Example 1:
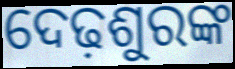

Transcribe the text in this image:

ଦେଢ଼ଶୁରଙ୍କ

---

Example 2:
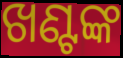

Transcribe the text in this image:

ଖଣ୍ଟଙ୍କ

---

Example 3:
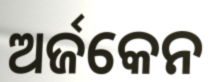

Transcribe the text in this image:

ଅର୍ଜକେନ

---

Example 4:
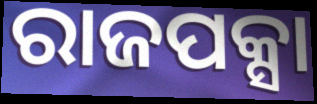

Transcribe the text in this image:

ରାଜପକ୍ସା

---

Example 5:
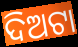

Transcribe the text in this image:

ଦିଅଟା